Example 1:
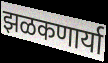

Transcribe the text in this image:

झळकणार्या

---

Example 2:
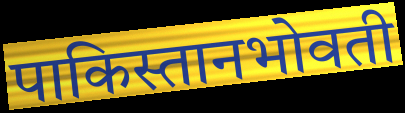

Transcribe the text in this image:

पाकिस्तानभोवती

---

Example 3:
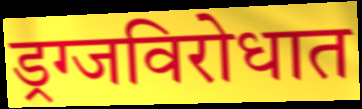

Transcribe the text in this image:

ड्रग्जविरोधात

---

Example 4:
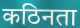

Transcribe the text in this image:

कठिनता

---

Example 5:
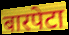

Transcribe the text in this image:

बारपेटा